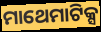
ମାଥେମାଟିକ୍ସ